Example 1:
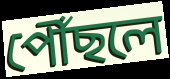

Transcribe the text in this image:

পৌঁছলে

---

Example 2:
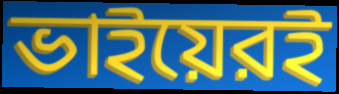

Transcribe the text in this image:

ভাইয়েরই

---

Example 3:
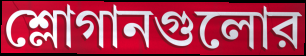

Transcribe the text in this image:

শ্লোগানগুলোর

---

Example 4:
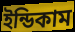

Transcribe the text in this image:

ইন্ডিকাম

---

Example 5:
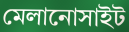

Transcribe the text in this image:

মেলানোসাইট